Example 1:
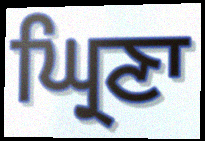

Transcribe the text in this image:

ਘ੍ਰਿਣਾ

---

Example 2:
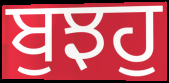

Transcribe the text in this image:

ਬੁਝਹੁ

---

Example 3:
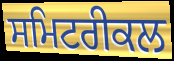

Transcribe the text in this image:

ਸਮਿਟਰੀਕਲ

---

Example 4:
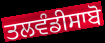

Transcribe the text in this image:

ਤਲਵੰਡੀਸਾਬੋ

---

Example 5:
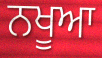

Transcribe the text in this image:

ਨਖੂਆ